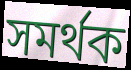
সমর্থক